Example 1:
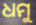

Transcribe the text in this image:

ଧମୁ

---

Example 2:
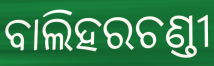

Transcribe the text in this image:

ବାଲିହରଚଣ୍ଡୀ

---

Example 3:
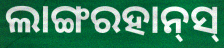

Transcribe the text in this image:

ଲାଙ୍ଗରହାନ୍‌ସ୍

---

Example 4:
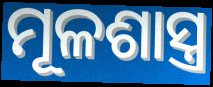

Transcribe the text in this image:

ମୂଳଶାସ୍ତ୍ର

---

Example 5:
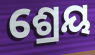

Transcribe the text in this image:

ଶ୍ରେୟ